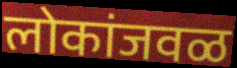
लोकांजवळ